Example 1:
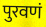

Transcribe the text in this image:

पुरवणं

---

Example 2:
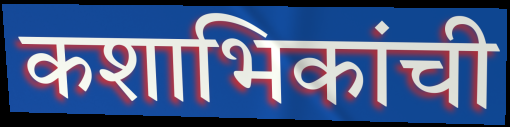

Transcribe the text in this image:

कशाभिकांची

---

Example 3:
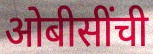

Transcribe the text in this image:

ओबीसींची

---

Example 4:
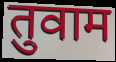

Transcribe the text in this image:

तुवाम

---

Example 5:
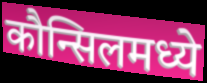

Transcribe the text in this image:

कौन्सिलमध्ये